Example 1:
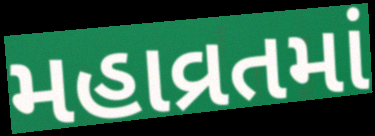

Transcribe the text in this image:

મહાવ્રતમાં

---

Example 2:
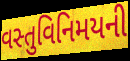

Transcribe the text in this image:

વસ્તુવિનિમયની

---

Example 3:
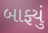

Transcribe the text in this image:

બાફ્યું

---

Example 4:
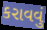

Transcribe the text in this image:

કરાવવું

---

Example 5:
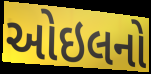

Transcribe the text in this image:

ઓઇલનો